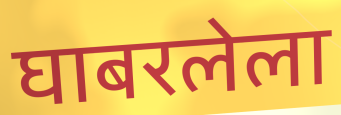
घाबरलेला